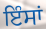
ਇੰਸਾਂ